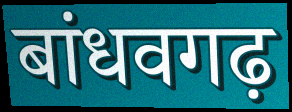
बांधवगढ़